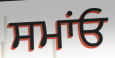
ਸਮਾਂਓ